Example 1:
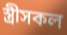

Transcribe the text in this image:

স্ত্ৰীসকল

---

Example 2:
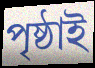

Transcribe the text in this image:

পৃষ্ঠাই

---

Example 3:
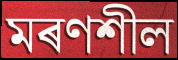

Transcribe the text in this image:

মৰণশীল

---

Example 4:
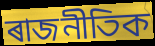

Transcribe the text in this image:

ৰাজনীতিক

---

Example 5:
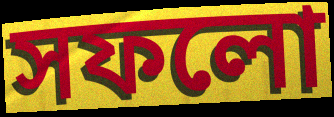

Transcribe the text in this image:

সফলো